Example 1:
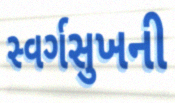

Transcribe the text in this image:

સ્વર્ગસુખની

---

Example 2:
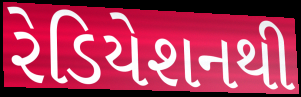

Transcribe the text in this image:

રેડિયેશનથી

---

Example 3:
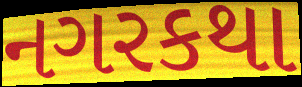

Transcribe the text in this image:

નગરકથા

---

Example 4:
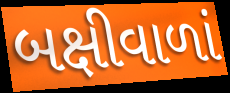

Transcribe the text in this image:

બક્ષીવાળાં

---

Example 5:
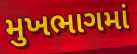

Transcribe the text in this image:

મુખભાગમાં